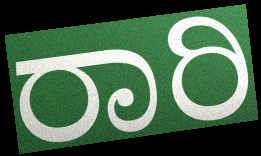
ರಾರಿ